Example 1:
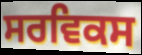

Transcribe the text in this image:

ਸਰਵਿਕਸ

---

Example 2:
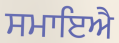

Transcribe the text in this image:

ਸਮਾਇਐ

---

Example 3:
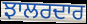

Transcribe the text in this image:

ਝਾਲਰਦਾਰ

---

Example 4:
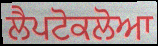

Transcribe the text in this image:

ਲੈਪਟੋਕਲੋਆ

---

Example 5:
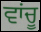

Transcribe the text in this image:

ਵਾਂਚੂ